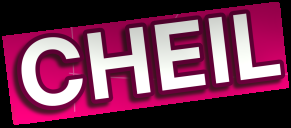
CHEIL